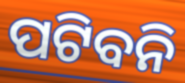
ପଟିବନି